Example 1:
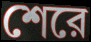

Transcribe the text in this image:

শেরে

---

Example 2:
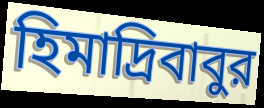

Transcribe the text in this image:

হিমাদ্রিবাবুর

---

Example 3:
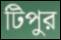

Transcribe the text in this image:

টিপুর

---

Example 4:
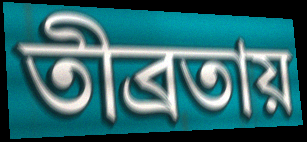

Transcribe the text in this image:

তীব্রতায়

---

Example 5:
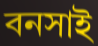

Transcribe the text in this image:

বনসাই